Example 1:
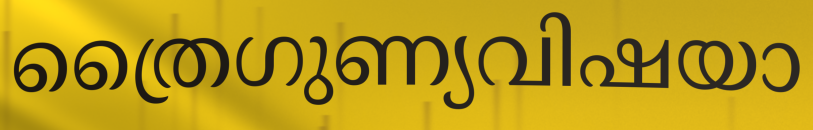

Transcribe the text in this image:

ത്രൈഗുണ്യവിഷയാ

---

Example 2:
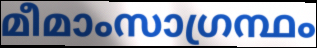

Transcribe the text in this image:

മീമാംസാഗ്രന്ഥം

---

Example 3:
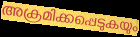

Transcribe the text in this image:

അക്രമിക്കപ്പെടുകയും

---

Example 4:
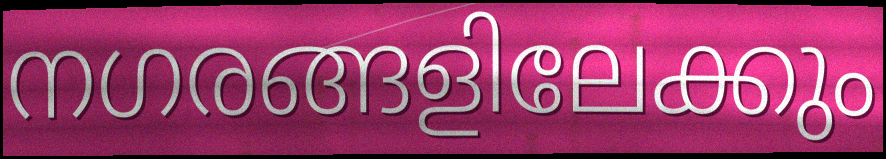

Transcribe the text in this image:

നഗരങ്ങളിലേക്കും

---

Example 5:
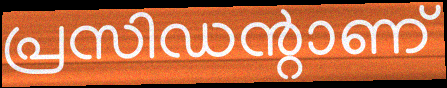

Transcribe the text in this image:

പ്രസിഡന്റാണ്